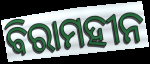
ବିରାମହୀନ